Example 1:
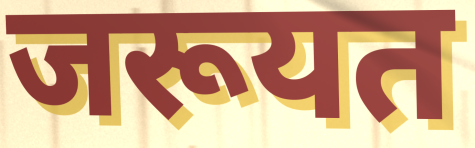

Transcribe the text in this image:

जरूयत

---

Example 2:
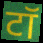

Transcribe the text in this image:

टॉ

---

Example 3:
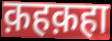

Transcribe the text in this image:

क़हक़हा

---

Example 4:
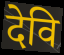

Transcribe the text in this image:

देवि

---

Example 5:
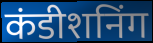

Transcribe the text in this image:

कंडीशनिंग